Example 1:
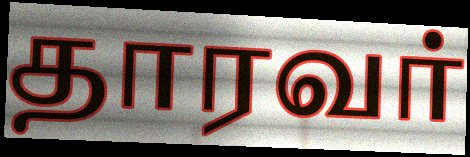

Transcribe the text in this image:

தாரவர்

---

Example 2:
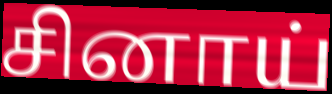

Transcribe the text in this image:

சினாய்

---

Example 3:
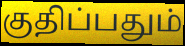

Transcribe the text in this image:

குதிப்பதும்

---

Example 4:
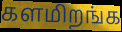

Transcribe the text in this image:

களமிறங்க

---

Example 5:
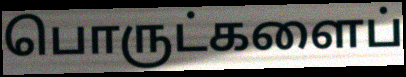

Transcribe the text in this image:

பொருட்களைப்